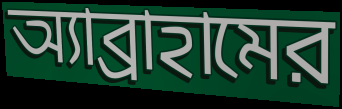
অ্যাব্রাহামের